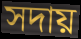
সদায়